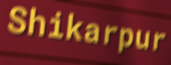
Shikarpur